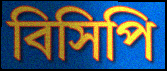
বিসিপি